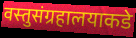
वस्तुसंग्रहालयाकडे